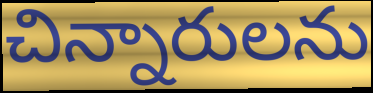
చిన్నారులను